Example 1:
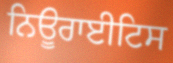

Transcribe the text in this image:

ਨਿਊਰਾਈਟਿਸ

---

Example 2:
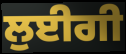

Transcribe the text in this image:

ਲੁਈਗੀ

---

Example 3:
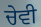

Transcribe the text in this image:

ਚੇਵੀ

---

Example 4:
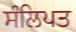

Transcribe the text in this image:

ਸੰਲਿਪਤ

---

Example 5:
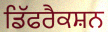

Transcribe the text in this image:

ਡਿੱਫਰੈਕਸ਼ਨ